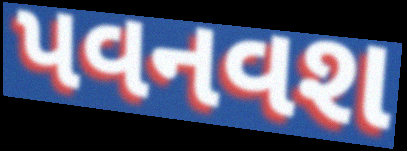
પવનવશ